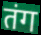
तंग